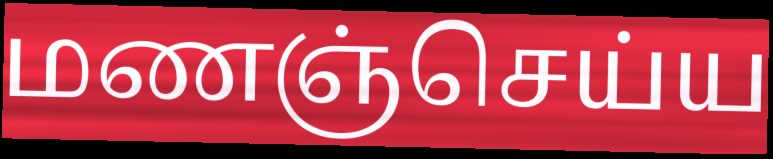
மணஞ்செய்ய